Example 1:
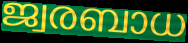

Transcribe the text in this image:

ജ്വരബാധ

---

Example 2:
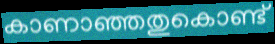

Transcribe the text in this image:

കാണാഞ്ഞതുകൊണ്ട്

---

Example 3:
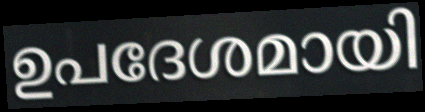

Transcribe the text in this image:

ഉപദേശമായി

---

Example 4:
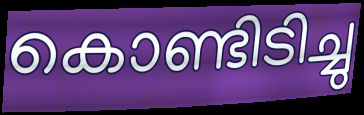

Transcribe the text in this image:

കൊണ്ടിടിച്ചു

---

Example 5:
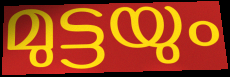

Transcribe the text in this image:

മുട്ടയും